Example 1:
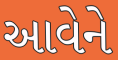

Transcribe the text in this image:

આવેને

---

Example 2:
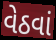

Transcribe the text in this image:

વેઠવાં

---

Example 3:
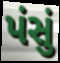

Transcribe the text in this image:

પંસું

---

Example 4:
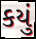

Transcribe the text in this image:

કયું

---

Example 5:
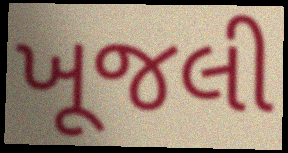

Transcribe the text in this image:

ખૂજલી